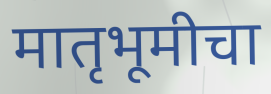
मातृभूमीचा